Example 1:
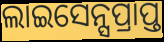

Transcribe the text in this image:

ଲାଇସେନ୍ସପ୍ରାପ୍ତ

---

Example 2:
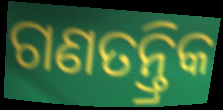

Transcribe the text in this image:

ଗଣତନ୍ତ୍ରିକ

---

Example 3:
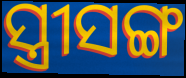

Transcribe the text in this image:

ସ୍ତ୍ରୀସଙ୍ଗ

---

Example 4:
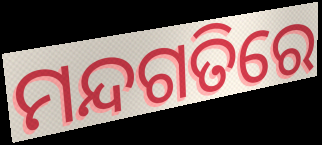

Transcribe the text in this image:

ମନ୍ଦଗତିରେ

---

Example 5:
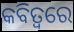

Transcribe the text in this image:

କବିତ୍ୱରେ